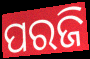
ପରଜି